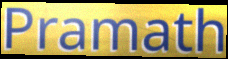
Pramath